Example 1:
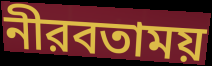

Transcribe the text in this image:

নীরবতাময়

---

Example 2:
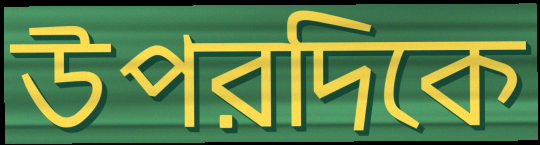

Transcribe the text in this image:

উপরদিকে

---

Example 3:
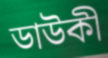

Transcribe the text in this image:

ডাউকী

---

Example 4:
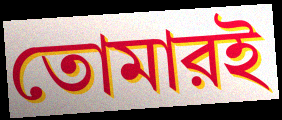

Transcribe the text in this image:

তোমারই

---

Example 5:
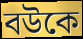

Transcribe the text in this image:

বউকে